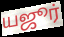
யஜூர்